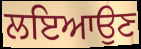
ਲਇਆਉਣ